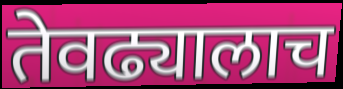
तेवढ्यालाच